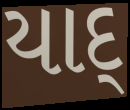
યાદ્